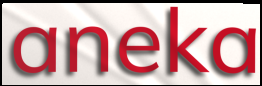
aneka